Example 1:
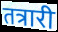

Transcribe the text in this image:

तत्रारी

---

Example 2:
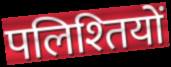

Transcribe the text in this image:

पलिश्‍तियों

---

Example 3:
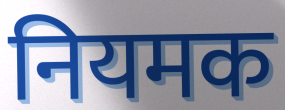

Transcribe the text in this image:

नियमक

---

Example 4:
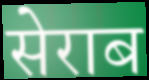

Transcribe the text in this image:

सेराब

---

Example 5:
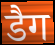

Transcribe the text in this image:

डैग